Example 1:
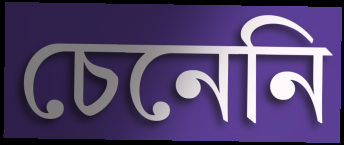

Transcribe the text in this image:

চেনেনি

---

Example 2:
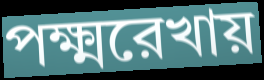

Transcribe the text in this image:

পক্ষ্মরেখায়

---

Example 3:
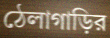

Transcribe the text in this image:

ঠেলাগাড়ির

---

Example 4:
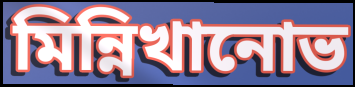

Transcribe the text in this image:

মিন্নিখানোভ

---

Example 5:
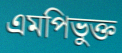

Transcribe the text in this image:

এমপিভুক্ত